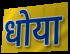
धोया